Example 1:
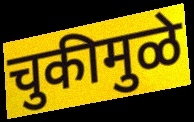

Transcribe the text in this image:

चुकीमुळे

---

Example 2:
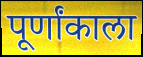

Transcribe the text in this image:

पूर्णांकाला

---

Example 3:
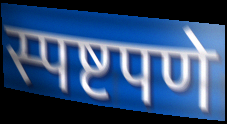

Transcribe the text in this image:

स्पष्टपणे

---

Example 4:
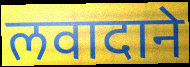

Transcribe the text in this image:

लवादाने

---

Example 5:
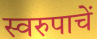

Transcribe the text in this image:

स्वरुपाचें